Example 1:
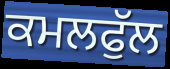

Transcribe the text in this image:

ਕਮਲਫੁੱਲ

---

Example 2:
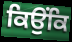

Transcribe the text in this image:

ਕਿਉਂਕਿ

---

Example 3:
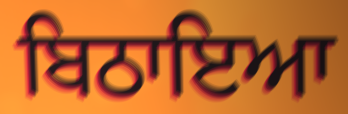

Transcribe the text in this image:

ਬਿਠਾਇਆ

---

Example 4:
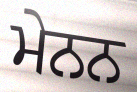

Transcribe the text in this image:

ਮੇਨਨ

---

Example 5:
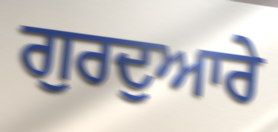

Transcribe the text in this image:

ਗੁਰਦੁਆਰੇ